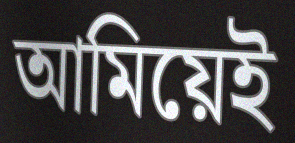
আমিয়েই